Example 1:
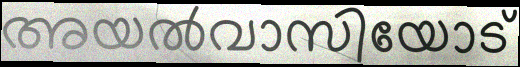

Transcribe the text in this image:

അയൽവാസിയോട്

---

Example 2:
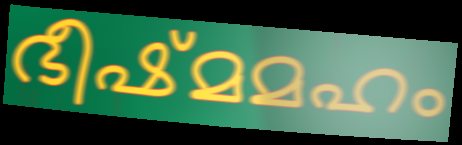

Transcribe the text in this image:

ഭീഷ്മമഹം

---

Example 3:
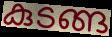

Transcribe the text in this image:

കുടങ്ങ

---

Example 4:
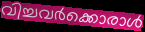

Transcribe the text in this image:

വിച്ചവർക്കൊരാൾ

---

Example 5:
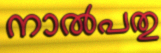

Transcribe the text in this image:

നാൽപതു